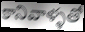
కానివాళ్ళతో